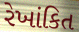
રેખાંકિત